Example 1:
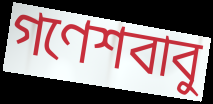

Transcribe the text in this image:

গণেশবাবু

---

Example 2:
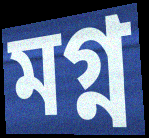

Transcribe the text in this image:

মগ্ন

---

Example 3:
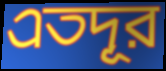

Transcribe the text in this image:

এতদূর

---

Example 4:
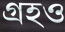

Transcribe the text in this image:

গ্রহও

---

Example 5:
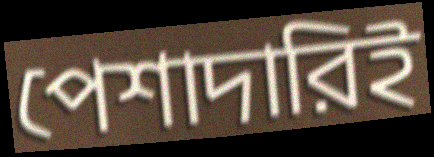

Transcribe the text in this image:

পেশাদারিই